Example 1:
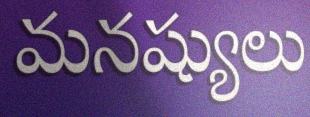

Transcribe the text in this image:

మనష్యులు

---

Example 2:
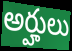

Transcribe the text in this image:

అర్హులు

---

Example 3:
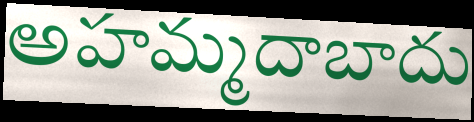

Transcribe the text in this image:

అహమ్మదాబాదు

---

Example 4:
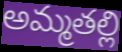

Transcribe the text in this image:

అమ్మతల్లి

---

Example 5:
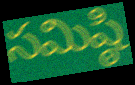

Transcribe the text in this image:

సమిష్ఠి